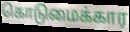
கொடுமைக்கார